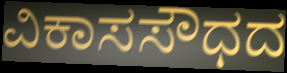
ವಿಕಾಸಸೌಧದ